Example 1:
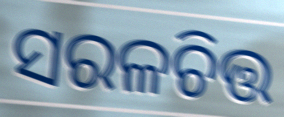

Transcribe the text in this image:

ସରଳଚିତ୍ତ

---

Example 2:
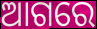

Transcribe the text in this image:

ଆଗରେ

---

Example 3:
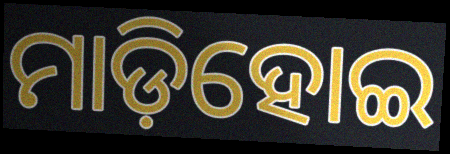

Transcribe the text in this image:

ମାଡ଼ିହୋଇ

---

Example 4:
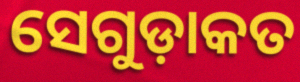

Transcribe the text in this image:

ସେଗୁଡ଼ାକତ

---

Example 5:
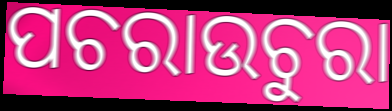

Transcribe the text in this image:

ପଚରାଉଚୁରା